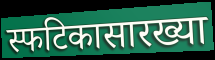
स्फटिकासारख्या